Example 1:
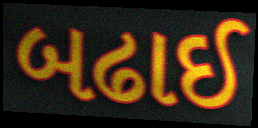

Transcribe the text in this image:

બઢાઈ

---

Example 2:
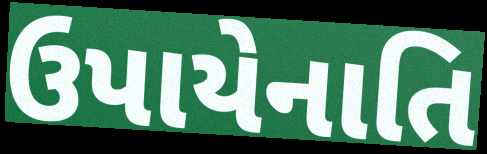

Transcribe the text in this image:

ઉપાયેનાતિ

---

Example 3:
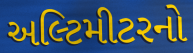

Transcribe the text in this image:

અલ્ટિમીટરનો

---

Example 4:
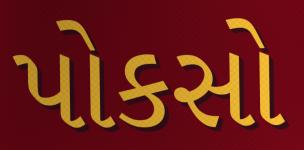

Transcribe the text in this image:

પોકસો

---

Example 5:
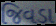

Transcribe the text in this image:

જિવડા